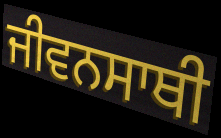
ਜੀਵਨਸਾਥੀ